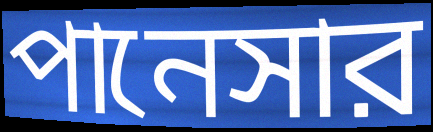
পানেসার